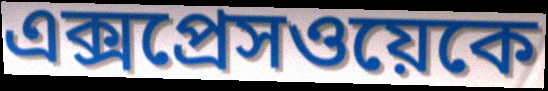
এক্সপ্রেসওয়েকে